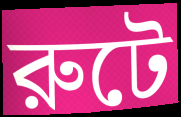
রুটে